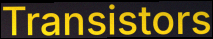
Transistors